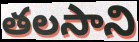
తలసాని